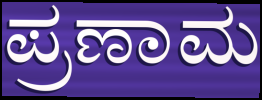
ಪ್ರಣಾಮ